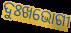
ଦୁଃଖଭୋଗୀ